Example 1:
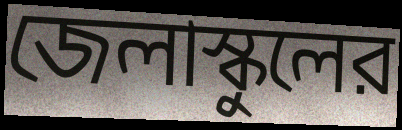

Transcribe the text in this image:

জেলাস্কুলের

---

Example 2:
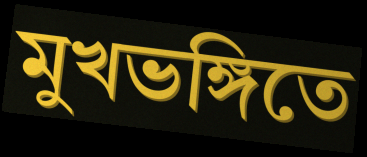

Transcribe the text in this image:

মুখভঙ্গিতে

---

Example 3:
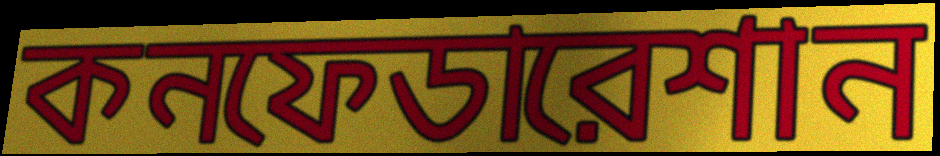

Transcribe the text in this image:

কনফেডারেশান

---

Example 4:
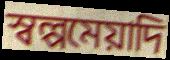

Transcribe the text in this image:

স্বল্পমেয়াদি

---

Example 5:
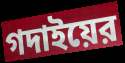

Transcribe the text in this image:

গদাইয়ের